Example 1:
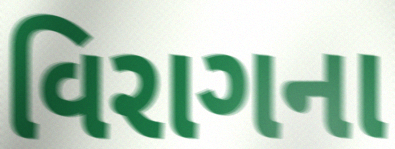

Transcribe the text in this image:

વિરાગના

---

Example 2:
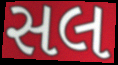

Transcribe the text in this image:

સલ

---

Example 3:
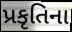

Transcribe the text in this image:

પ્રકૃતિના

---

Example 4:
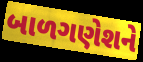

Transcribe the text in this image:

બાળગણેશને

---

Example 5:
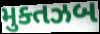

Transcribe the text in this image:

મુક્તઝબ